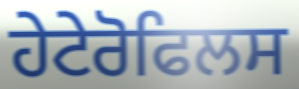
ਹੇਟੇਰੋਫਿਲਸ